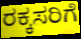
ರಕ್ಕಸರಿಗೆ